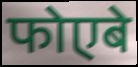
फोएबे